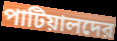
পাটিয়ালদের